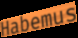
Habemus